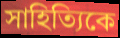
সাহিত্যিকে